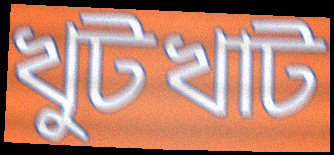
খুটখাট